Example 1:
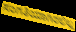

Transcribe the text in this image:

ಸಂಗತಿಯಾಗಿರಲಿಲ್ಲ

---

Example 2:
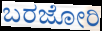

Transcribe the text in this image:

ಬರಜೋರಿ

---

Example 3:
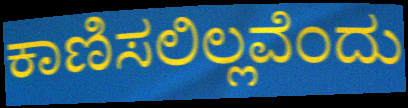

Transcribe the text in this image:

ಕಾಣಿಸಲಿಲ್ಲವೆಂದು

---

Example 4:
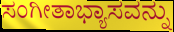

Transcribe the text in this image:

ಸಂಗೀತಾಭ್ಯಾಸವನ್ನು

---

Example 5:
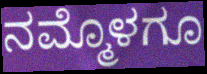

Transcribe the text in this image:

ನಮ್ಮೊಳಗೂ